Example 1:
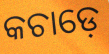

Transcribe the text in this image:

କଚାଡ଼େ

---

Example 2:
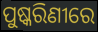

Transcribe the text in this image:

ପୁଷ୍କରିଣୀରେ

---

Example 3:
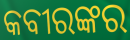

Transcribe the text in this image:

କବୀରଙ୍କର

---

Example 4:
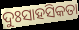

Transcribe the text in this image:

ଦୁଃସାହସିକତା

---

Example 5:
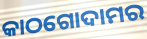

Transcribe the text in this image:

କାଠଗୋଦାମର